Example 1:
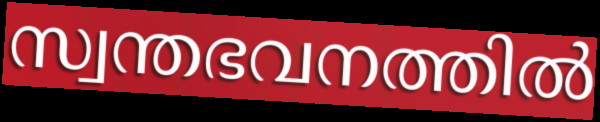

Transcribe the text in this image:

സ്വന്തഭവനത്തിൽ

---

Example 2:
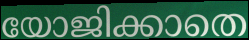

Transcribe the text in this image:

യോജിക്കാതെ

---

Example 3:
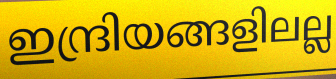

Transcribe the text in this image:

ഇന്ദ്രിയങ്ങളിലല്ല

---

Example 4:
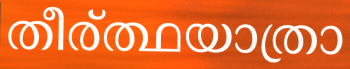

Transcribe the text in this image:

തീര്ത്ഥയാത്രാ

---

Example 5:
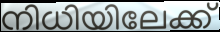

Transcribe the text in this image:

നിധിയിലേക്ക്